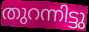
തുറന്നിട്ടു